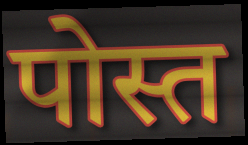
पोस्त